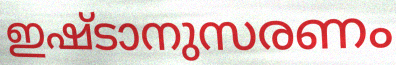
ഇഷ്ടാനുസരണം